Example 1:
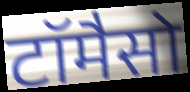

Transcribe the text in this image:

टॉमैसो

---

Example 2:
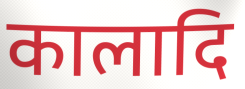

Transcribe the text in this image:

कालादि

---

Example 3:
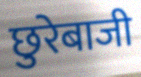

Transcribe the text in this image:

छुरेबाजी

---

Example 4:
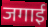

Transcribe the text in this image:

जगाई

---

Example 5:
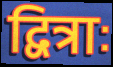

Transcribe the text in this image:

द्वित्राः